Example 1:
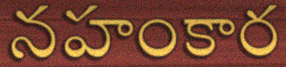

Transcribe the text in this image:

నహంకార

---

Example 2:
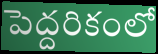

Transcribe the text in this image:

పెద్దరికంలో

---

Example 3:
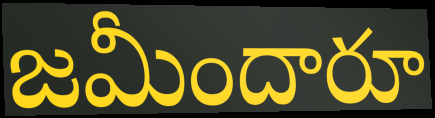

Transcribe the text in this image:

జమీందారూ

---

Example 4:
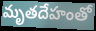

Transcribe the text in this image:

మృతదేహంతో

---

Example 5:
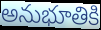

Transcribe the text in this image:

అనుభూతికి